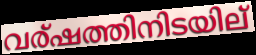
വര്ഷത്തിനിടയില്